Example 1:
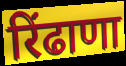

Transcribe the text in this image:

रिंढाणा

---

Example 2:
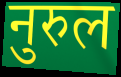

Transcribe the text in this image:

नुरुल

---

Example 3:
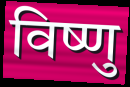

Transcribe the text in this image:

विष्‍णु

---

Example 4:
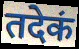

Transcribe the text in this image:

तदेकं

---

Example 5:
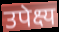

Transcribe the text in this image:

उपेक्ष्य